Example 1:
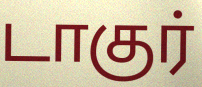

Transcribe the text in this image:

டாகுர்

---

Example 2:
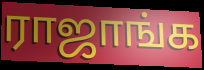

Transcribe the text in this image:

ராஜாங்க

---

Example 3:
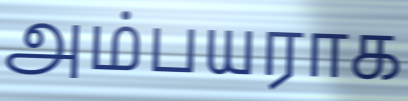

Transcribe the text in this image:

அம்பயராக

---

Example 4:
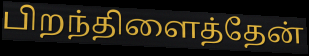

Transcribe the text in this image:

பிறந்திளைத்தேன்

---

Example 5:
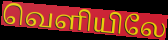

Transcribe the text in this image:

வெளியிலே